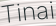
Tinai